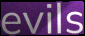
evils